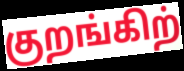
குறங்கிற்